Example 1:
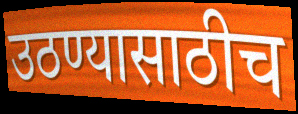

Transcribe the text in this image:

उठण्यासाठीच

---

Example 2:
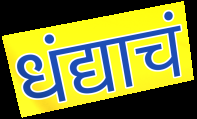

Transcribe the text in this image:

धंद्याचं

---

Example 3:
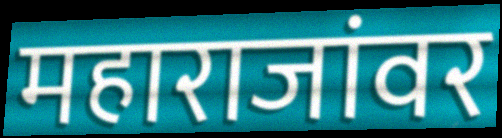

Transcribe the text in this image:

महाराजांवर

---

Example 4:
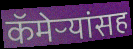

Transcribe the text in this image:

कॅमेऱ्यांसह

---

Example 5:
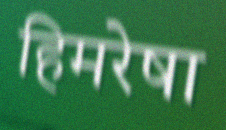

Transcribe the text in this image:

हिमरेषा